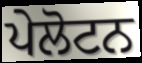
ਪੇਲੋਟਨ